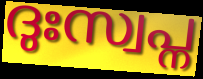
ദുഃസ്വപ്ന